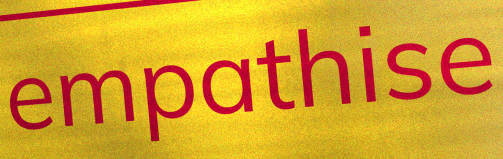
empathise